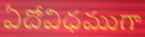
ఏదోవిధముగా